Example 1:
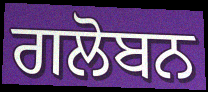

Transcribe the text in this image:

ਗਲੋਬਨ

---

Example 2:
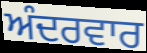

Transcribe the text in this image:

ਅੰਦਰਵਾਰ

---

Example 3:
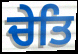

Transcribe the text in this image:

ਚੇਤਿ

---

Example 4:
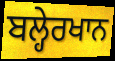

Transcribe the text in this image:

ਬਲ੍ਹੇਰਖਾਨ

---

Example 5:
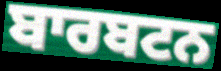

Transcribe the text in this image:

ਬਾਰਬਟਨ